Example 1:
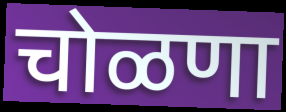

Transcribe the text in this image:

चोळणा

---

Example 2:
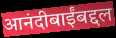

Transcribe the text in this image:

आनंदीबाईंबद्दल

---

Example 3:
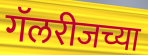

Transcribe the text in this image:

गॅलरीजच्या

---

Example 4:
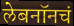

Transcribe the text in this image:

लेबनॉनचं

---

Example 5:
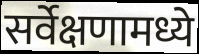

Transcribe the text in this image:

सर्वेक्षणामध्ये